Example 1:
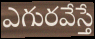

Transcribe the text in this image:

ఎగురవేస్తే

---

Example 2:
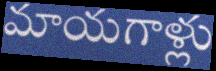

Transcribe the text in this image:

మాయగాళ్లు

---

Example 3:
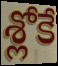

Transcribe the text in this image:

శ్లోకే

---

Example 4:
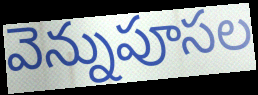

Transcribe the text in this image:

వెన్నుపూసల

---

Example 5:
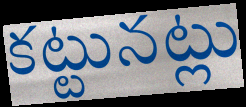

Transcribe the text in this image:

కట్టునట్లు